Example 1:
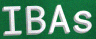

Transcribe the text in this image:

IBAs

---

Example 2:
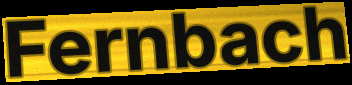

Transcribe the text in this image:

Fernbach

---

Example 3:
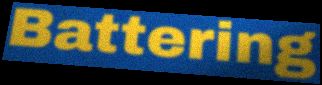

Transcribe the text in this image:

Battering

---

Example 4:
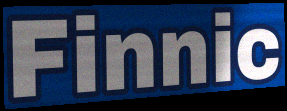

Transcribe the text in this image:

Finnic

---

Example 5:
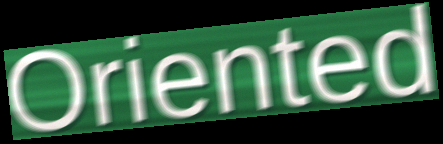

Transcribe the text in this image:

Oriented